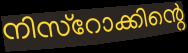
നിസ്റോക്കിന്റെ